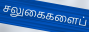
சலுகைகளைப்